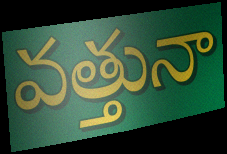
వత్తునా